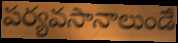
పర్యవసానాలుండే